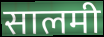
सालमी